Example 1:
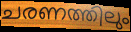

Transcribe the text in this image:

ചരണത്തിലും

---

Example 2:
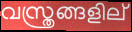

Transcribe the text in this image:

വസ്ത്രങ്ങളില്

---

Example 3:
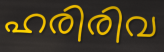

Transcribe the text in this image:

ഹരിരിവ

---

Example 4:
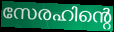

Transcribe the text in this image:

സേരഹിന്റെ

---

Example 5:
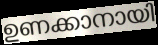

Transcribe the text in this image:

ഉണക്കാനായി